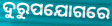
ଦୁରୁପଯୋଗରେ